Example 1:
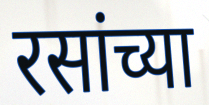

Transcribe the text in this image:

रसांच्या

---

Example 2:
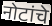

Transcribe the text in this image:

नोटांचे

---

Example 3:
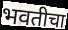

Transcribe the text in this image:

भवतीचा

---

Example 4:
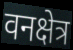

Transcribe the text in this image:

वनक्षेत्र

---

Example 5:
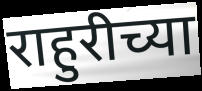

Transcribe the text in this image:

राहुरीच्या